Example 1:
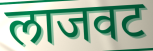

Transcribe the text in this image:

लाजवट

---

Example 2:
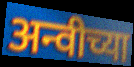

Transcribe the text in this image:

अन्वीच्या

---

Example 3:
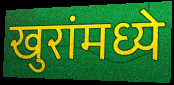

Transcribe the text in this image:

खुरांमध्ये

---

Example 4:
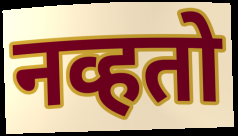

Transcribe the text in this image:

नव्हतो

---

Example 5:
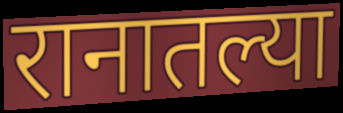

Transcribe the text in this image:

रानातल्या